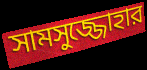
সামসুজ্জোহার